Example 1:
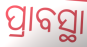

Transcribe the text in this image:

ପ୍ରାବସ୍ଥା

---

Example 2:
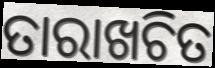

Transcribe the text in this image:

ତାରାଖଚିତ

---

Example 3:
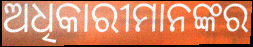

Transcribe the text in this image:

ଅଧିକାରୀମାନଙ୍କର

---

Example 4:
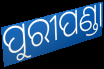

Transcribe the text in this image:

ପୁରୀପଣ୍ଡା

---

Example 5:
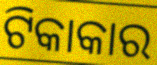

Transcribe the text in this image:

ଟିକାକାର